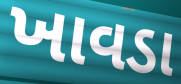
ખાવડા